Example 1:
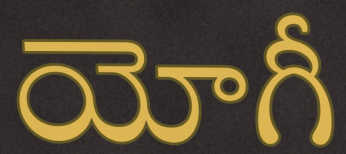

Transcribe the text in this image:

యోగీ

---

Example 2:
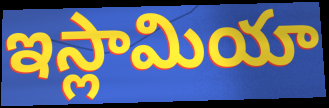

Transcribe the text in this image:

ఇస్లామియా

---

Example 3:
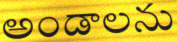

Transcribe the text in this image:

అండాలను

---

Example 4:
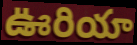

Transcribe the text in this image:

ఊరియా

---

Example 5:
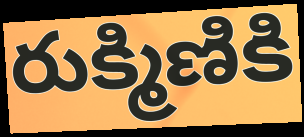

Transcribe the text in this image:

రుక్మిణికి